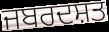
ਜਬਰਦਸ਼ਤ